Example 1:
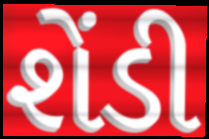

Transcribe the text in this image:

શેંડી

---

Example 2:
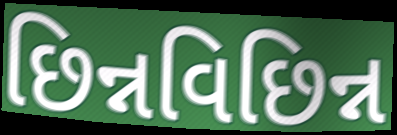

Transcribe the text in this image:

છિન્નવિછિન્ન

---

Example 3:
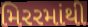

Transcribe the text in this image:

મિરરમાંથી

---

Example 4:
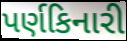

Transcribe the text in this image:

પર્ણકિનારી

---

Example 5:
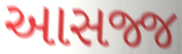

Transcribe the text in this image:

આસજ્જ